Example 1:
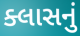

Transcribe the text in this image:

ક્લાસનું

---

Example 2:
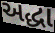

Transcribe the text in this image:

અદ્ધા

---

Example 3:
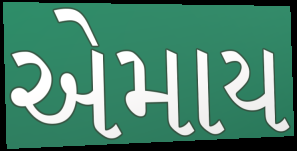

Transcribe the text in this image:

એમાય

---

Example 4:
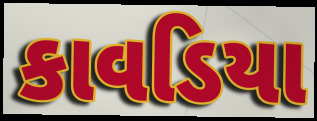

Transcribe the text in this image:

કાવડિયા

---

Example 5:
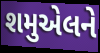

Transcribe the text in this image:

શમુએલને